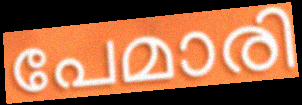
പേമാരി